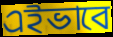
এইভাবে